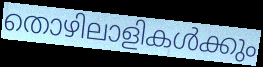
തൊഴിലാളികൾക്കും